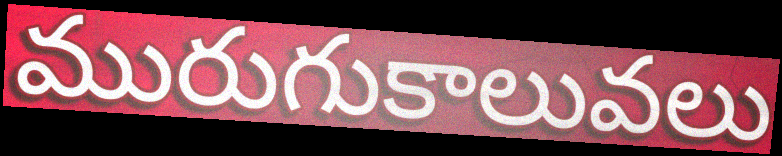
మురుగుకాలువలు